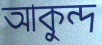
আকুন্দ